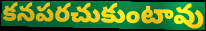
కనపరచుకుంటావు